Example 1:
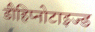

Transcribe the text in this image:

डीहिप्नोटाइज्ड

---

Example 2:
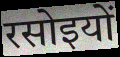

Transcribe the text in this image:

रसोइयों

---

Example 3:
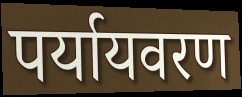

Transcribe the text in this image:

पर्यायवरण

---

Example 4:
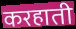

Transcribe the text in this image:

करहाती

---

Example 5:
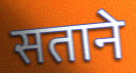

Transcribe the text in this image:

सताने